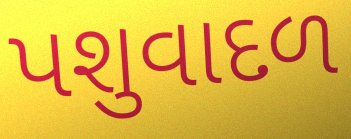
પશુવાદળ